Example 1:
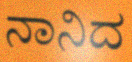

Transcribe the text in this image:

ನಾನಿದ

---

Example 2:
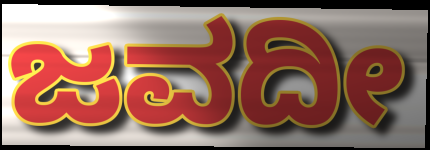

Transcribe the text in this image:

ಜವದೀ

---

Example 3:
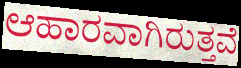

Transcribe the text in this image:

ಆಹಾರವಾಗಿರುತ್ತವೆ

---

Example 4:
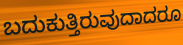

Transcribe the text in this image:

ಬದುಕುತ್ತಿರುವುದಾದರೂ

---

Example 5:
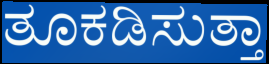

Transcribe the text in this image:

ತೂಕಡಿಸುತ್ತಾ